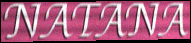
NATANA